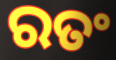
ରତଂ